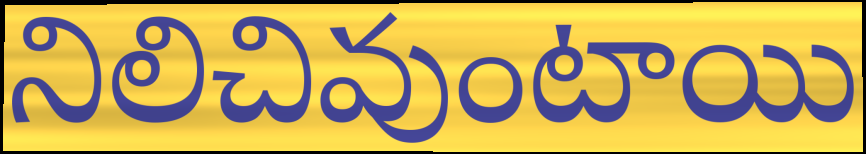
నిలిచివుంటాయి